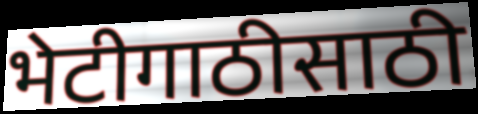
भेटीगाठीसाठी